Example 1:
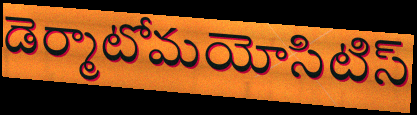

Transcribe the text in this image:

డెర్మాటోమయోసిటిస్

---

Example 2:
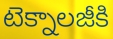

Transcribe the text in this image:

టెక్నాలజీకి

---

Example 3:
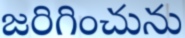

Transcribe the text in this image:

జరిగించును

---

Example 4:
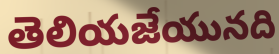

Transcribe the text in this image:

తెలియజేయునది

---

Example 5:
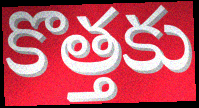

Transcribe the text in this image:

కొత్తకు